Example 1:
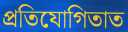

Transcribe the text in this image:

প্ৰতিযোগিতাত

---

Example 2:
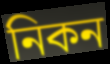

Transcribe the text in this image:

নিকন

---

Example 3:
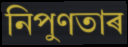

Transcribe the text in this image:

নিপুণতাৰ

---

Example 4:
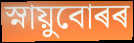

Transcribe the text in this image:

স্নায়ুবোৰৰ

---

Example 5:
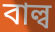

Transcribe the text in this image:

বাল্ব